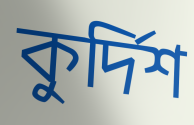
কুর্দিশ